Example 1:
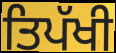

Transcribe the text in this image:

ਤਿਪੱਖੀ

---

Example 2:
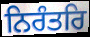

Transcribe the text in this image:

ਨਿਰੰਤਰਿ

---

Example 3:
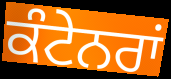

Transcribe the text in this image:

ਕੰਟੇਨਰਾਂ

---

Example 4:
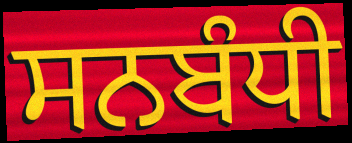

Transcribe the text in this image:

ਸਨਬੰਧੀ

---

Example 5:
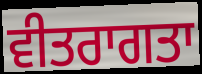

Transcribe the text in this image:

ਵੀਤਰਾਗਤਾ